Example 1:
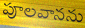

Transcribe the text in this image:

పూలవానను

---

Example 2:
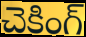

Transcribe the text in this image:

చెకింగ్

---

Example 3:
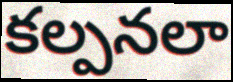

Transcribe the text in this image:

కల్పనలా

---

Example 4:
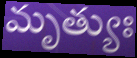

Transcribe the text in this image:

మృత్యుః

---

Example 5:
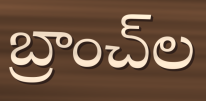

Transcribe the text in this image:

బ్రాంచ్‌ల